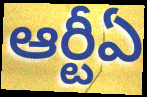
ఆర్టీఏ